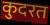
कुदरत